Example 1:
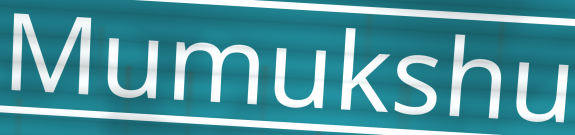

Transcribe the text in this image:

Mumukshu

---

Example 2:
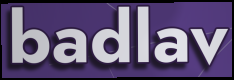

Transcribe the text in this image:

badlav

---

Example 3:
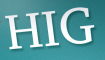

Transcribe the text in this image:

HIG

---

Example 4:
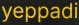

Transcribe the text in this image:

yeppadi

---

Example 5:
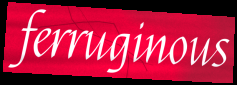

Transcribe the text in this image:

ferruginous